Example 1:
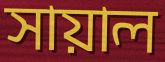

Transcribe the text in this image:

সায়াল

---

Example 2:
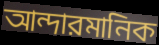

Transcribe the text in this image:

আন্দারমানিক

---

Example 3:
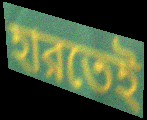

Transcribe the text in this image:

হারতেই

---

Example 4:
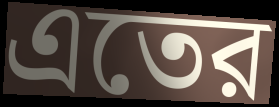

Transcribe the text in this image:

এতের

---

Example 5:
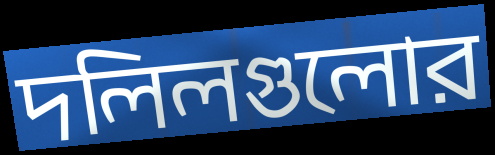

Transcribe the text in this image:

দলিলগুলোর